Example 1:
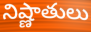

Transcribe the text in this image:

నిష్ణాతులు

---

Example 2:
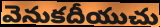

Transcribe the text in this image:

వెనుకదీయుచు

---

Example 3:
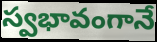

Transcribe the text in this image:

స్వభావంగానే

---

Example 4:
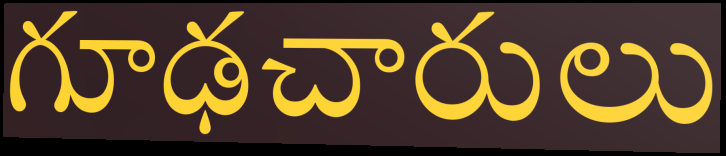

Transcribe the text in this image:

గూఢచారులు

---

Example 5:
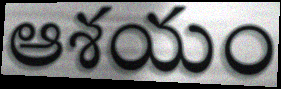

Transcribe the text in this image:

ఆశయం